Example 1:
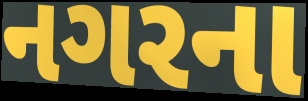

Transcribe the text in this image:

નગરના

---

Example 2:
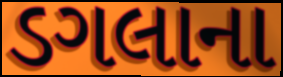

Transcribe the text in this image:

ડગલાના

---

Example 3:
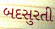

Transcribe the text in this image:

બદસુરતી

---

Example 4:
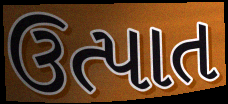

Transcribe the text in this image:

ઉત્પાત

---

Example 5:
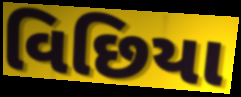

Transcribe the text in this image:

વિછિયા